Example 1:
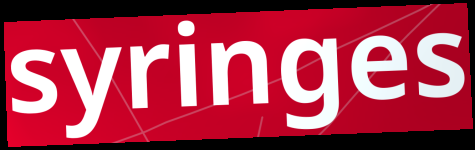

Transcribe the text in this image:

syringes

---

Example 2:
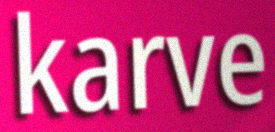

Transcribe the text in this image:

karve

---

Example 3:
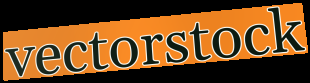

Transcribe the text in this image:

vectorstock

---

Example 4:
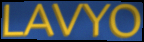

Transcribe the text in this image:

LAVYO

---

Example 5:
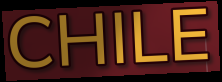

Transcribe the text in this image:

CHILE